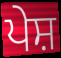
ਪੇਸ਼